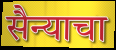
सैन्याचा